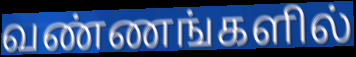
வண்ணங்களில்